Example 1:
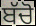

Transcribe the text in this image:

ਬੱਚੋ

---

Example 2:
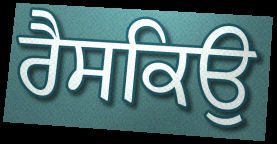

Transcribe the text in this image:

ਰੈਸਕਿਉ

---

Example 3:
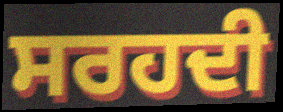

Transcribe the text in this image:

ਸਰਹਦੀ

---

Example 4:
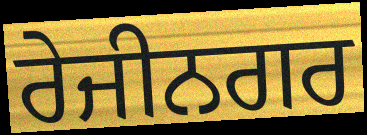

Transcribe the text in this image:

ਰੇਜੀਨਗਰ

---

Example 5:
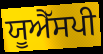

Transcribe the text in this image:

ਯੂਐੱਸਪੀ